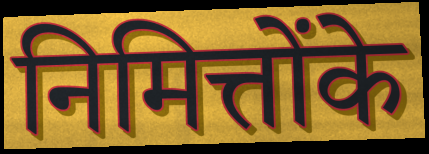
निमित्तोंके